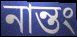
নান্তং